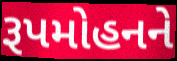
રૂપમોહનને